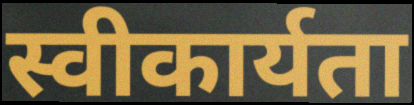
स्वीकार्यता